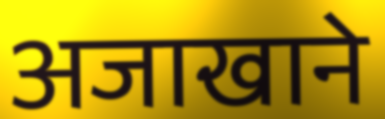
अजाखाने